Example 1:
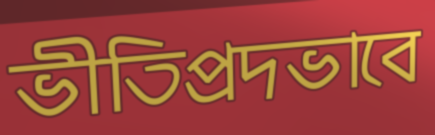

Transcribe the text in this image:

ভীতিপ্রদভাবে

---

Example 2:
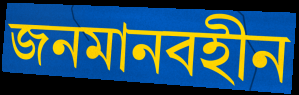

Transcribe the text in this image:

জনমানবহীন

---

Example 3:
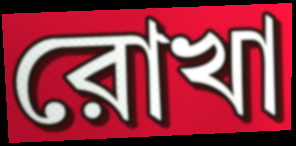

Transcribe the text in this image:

রোখা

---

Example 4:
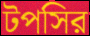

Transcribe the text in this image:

টপসির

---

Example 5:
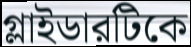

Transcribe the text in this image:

গ্লাইডারটিকে